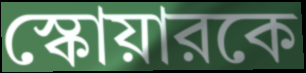
স্কোয়ারকে